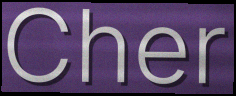
Cher